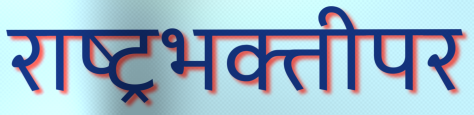
राष्ट्रभक्तीपर